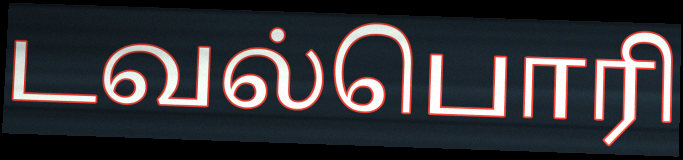
டவல்பொரி